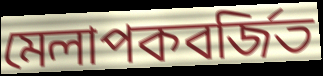
মেলাপকবর্জিত